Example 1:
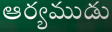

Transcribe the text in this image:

ఆర్యముడు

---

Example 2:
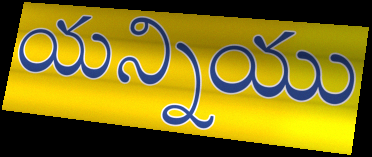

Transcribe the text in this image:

యన్నియు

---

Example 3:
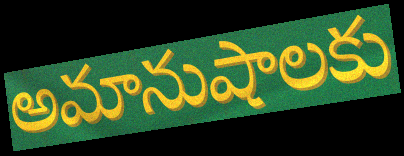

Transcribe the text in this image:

అమానుషాలకు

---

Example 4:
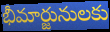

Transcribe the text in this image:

భీమార్జునులకు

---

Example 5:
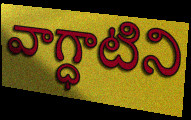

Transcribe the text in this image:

వాగ్ధాటిని